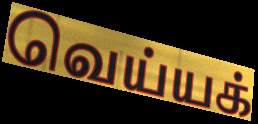
வெய்யக்